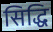
सिद्धि